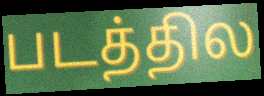
படத்தில